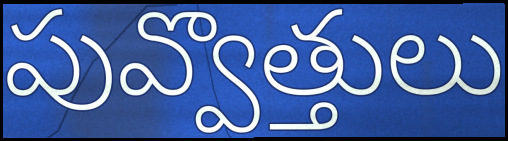
పువ్వొత్తులు